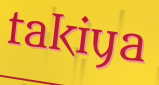
takiya